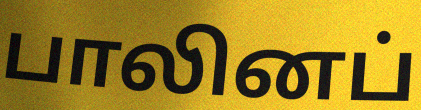
பாலினப்